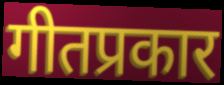
गीतप्रकार